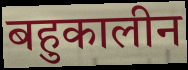
बहुकालीन